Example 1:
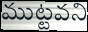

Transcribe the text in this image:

ముట్టవని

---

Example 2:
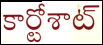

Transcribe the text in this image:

కార్టోశాట్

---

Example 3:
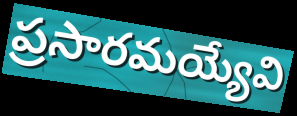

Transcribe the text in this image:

ప్రసారమయ్యేవి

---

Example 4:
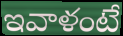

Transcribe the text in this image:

ఇవాళంటే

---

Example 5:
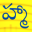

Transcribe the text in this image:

హ్మా